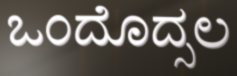
ಒಂದೊದ್ಸಲ